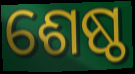
ଶେଷ୍ଠ